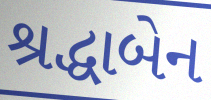
શ્રદ્ધાબેન